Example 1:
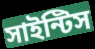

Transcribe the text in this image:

সাইন্টিস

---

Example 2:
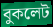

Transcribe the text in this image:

বুকলেট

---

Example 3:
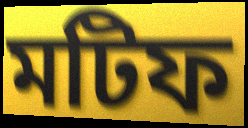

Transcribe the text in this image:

মটিফ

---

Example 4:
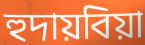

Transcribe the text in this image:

হুদায়বিয়া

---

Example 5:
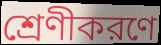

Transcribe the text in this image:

শ্রেণীকরণে